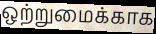
ஒற்றுமைக்காக